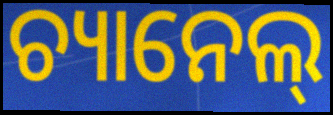
ଚ୍ୟାନେଲ୍